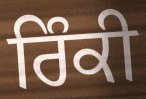
ਰਿੰਕੀ